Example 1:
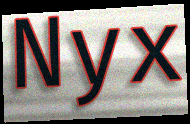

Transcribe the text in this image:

Nyx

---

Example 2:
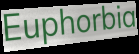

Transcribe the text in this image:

Euphorbia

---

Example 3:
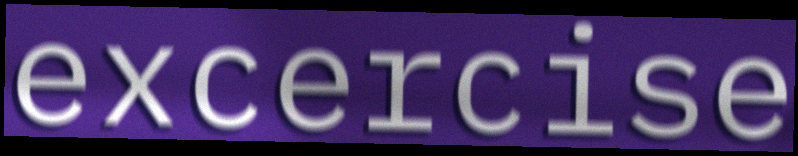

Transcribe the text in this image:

excercise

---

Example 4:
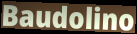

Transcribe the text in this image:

Baudolino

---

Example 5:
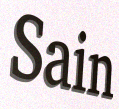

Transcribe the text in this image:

Sain